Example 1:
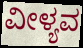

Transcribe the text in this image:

ವೀಳ್ಯವ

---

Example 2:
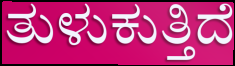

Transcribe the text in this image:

ತುಳುಕುತ್ತಿದೆ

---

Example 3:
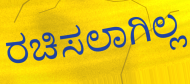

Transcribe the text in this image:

ರಚಿಸಲಾಗಿಲ್ಲ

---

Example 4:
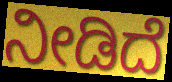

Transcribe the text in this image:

ನೀಡಿದೆ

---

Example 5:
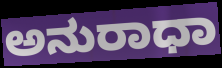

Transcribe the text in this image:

ಅನುರಾಧಾ